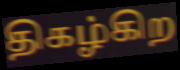
திகழ்கிற